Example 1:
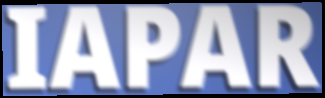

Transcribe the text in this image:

IAPAR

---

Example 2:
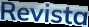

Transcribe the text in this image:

Revista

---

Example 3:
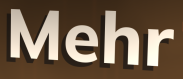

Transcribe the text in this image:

Mehr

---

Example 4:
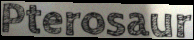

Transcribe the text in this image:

Pterosaur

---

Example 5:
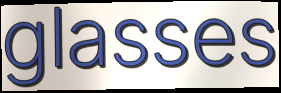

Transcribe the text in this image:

glasses